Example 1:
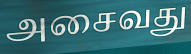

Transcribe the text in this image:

அசைவது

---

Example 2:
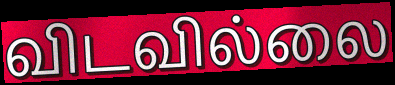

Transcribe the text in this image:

விடவில்லை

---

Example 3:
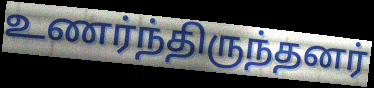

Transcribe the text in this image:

உணர்ந்திருந்தனர்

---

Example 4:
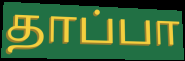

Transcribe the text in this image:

தாப்பா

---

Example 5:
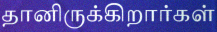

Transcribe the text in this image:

தானிருக்கிறார்கள்